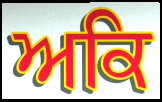
ਅਕਿ